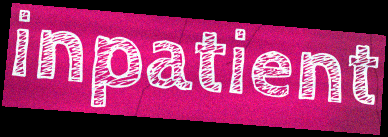
inpatient